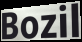
Bozil